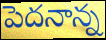
పెదనాన్న